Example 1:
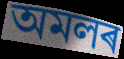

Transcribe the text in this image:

অমলৰ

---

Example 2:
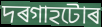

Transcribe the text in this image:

দৰগাহটোৰ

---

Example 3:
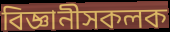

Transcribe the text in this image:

বিজ্ঞানীসকলক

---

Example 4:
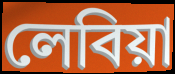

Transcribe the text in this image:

লেবিয়া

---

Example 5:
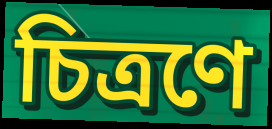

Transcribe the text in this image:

চিত্ৰণে